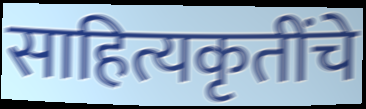
साहित्यकृतींचे